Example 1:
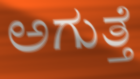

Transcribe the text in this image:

ಅಗುತ್ತೆ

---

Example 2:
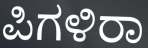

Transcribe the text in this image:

ಪಿಗಳಿರಾ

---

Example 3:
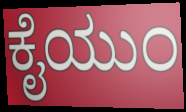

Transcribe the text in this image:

ಕೈಯುಂ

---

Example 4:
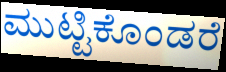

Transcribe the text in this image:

ಮುಟ್ಟಿಕೊಂಡರೆ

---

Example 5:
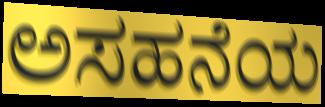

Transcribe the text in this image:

ಅಸಹನೆಯ